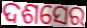
ଦଶସେର